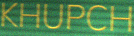
KHUPCH